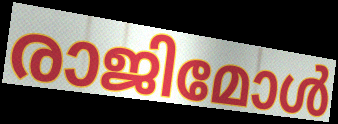
രാജിമോൾ